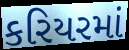
કરિયરમાં